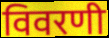
विवरणी